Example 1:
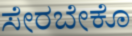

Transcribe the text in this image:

ಸೇರಬೇಕೊ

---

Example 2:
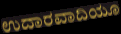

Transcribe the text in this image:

ಉದಾರವಾದಿಯೂ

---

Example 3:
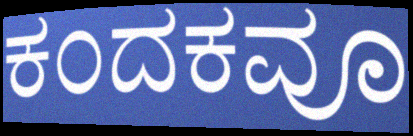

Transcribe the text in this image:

ಕಂದಕವೂ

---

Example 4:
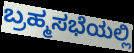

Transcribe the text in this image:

ಬ್ರಹ್ಮಸಭೆಯಲ್ಲಿ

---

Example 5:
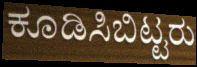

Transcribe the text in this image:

ಕೂಡಿಸಿಬಿಟ್ಟರು